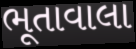
ભૂતાવાલા